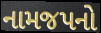
નામજપનો